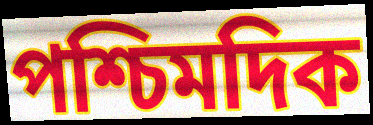
পশ্চিমদিক